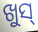
ଖୁସ୍